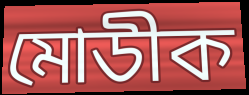
মোডীক